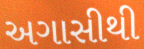
અગાસીથી